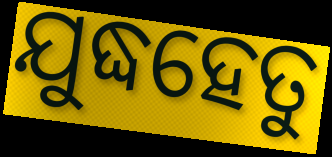
ଯୁଦ୍ଧହେତୁ